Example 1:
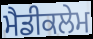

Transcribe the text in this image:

ਮੈਡੀਕਲੇਮ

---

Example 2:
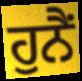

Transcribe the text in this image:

ਹੁਨੈਂ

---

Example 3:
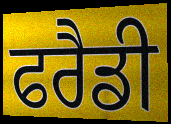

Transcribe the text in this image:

ਫਰੈਡੀ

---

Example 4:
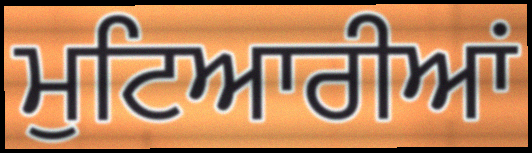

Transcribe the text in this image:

ਮੁਟਿਆਰੀਆਂ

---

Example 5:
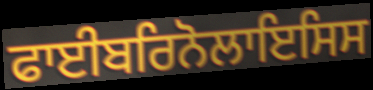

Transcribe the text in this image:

ਫਾਈਬਰਿਨੋਲਾਇਸਿਸ